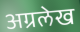
अग्रलेख